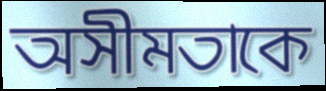
অসীমতাকে